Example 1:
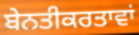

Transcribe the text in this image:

ਬੇਨਤੀਕਰਤਾਵਾਂ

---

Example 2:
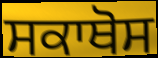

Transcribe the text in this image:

ਸਕਾਥੋਸ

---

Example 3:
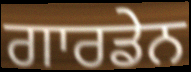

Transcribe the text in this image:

ਗਾਰਡੇਨ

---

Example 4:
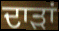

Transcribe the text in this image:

ਦਾੜਾਂ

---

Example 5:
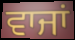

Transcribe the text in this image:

ਵਾਜਾਂ